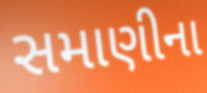
સમાણીના